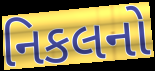
નિકલનો